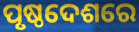
ପୃଷ୍ଠଦେଶରେ